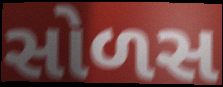
સોળસ